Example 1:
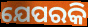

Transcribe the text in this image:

ଯେପରକି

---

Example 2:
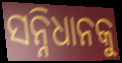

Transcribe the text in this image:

ସନ୍ନିଧାନକୁ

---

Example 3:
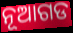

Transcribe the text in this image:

ନୂଆଗଡ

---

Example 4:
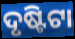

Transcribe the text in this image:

ଦୃଷ୍ଟିଟା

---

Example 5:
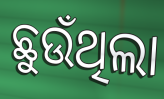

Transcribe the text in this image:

ଛୁଉଁଥିଲା